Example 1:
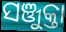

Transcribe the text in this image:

ସଞ୍ଜୁକ୍ତା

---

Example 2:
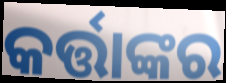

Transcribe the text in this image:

କର୍ତ୍ତାଙ୍କର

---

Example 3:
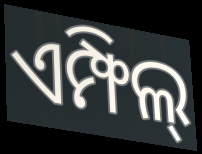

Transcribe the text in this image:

ଏମ୍ଫିଲ୍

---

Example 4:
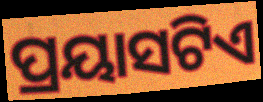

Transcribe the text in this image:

ପ୍ରୟାସଟିଏ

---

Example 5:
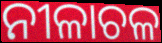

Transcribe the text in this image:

ନୀଳାଚଳ